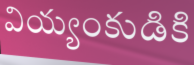
వియ్యంకుడికి